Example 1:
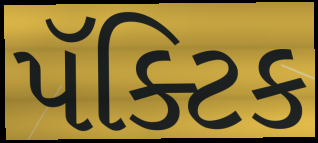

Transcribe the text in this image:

પૅક્ટિક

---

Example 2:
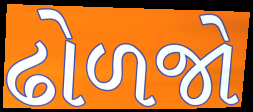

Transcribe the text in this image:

ઢોળજો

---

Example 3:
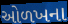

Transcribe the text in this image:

ઓળખના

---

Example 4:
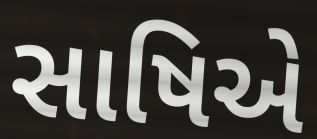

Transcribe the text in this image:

સાષિએ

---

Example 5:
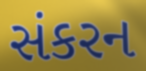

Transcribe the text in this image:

સંકરન